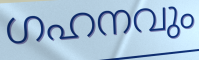
ഗഹനവും